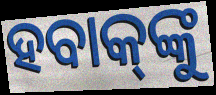
ହବାକ୍‌ଙ୍କୁ